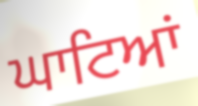
ਘਾਟਿਆਂ